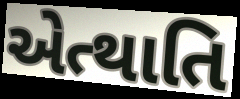
એત્થાતિ